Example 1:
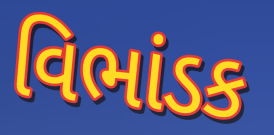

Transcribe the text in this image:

વિભાંડક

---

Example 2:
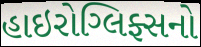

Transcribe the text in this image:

હાઇરોગ્લિફ્સનો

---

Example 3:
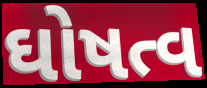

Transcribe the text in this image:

ઘોષત્વ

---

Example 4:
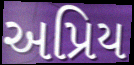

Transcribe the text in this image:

અપ્રિય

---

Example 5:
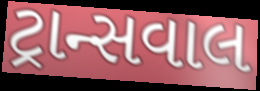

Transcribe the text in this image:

ટ્રાન્સવાલ